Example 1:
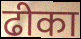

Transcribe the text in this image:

ढीका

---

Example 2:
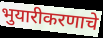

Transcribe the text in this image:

भुयारीकरणाचे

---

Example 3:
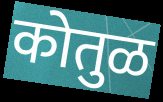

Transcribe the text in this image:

कोतुळ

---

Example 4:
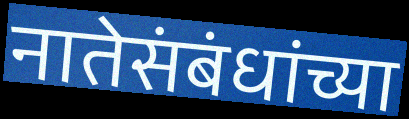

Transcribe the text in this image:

नातेसंबंधांच्या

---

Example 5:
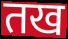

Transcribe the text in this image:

तख